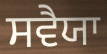
ਸਵੈਯਾ